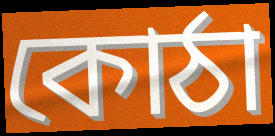
কোঠা